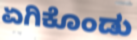
ಏಗಿಕೊಂಡು